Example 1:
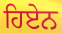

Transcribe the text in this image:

ਹਿਏਨ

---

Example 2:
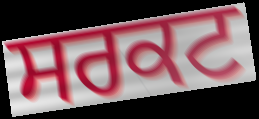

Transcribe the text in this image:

ਸਰਕਟ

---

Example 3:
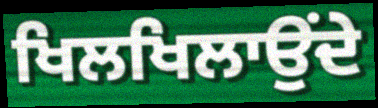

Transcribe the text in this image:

ਖਿਲਖਿਲਾਉਂਦੇ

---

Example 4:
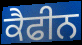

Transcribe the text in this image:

ਕੈਫੀਨ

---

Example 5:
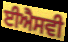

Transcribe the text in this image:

ਈਐਸਵੀ